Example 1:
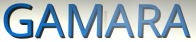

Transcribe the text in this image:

GAMARA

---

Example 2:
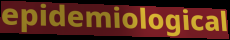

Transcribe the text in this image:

epidemiological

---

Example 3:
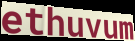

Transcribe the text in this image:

ethuvum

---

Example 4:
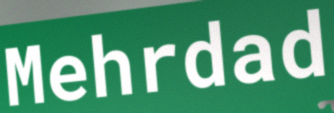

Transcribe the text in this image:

Mehrdad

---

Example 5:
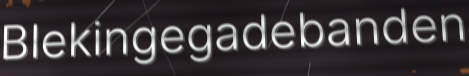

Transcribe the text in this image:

Blekingegadebanden